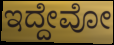
ಇದ್ದೇವೋ